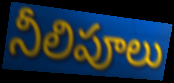
నీలిపూలు